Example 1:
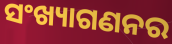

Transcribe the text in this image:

ସଂଖ୍ୟାଗଣନର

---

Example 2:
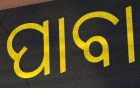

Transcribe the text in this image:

ପାବା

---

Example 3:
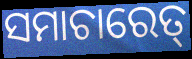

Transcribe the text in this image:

ସମାଚାରେତ୍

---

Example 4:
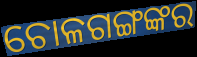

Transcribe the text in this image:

ଚୋଳଗଙ୍ଗଙ୍କର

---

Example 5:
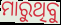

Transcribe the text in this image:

ମାରୁଥିବୁ